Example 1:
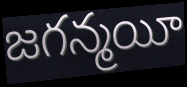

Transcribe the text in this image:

జగన్మయీ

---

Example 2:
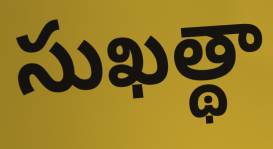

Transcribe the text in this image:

సుఖత్థా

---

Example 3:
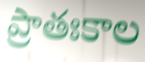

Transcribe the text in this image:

ప్రాతఃకాల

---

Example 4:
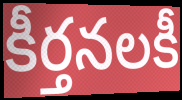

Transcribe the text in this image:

కీర్తనలకీ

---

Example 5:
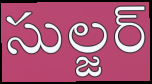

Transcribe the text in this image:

సుల్జర్